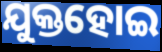
ଯୁକ୍ତହୋଇ